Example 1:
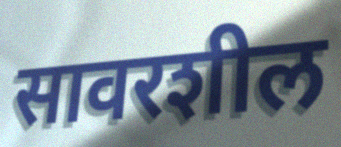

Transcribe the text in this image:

सावरशील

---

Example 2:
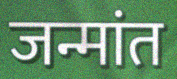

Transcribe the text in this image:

जन्मांत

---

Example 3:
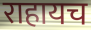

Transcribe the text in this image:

राहायच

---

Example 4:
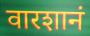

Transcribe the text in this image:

वारशानं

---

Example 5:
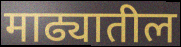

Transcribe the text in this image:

माढ्यातील